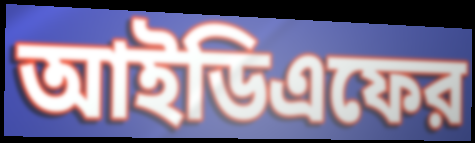
আইডিএফের